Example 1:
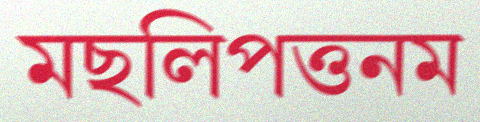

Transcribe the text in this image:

মছলিপত্তনম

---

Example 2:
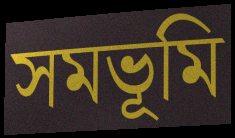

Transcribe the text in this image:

সমভূমি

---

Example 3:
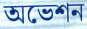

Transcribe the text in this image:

অভেশন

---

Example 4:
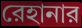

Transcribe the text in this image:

রেহানার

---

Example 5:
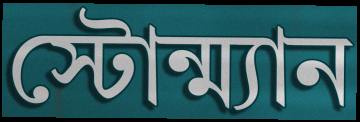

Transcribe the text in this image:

স্টোন্ম্যান